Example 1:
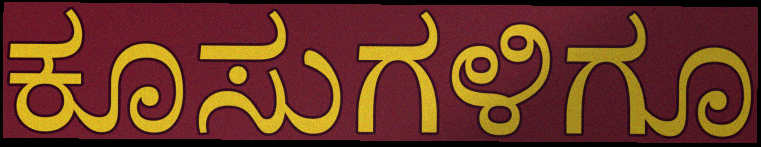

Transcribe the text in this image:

ಕೂಸುಗಳಿಗೂ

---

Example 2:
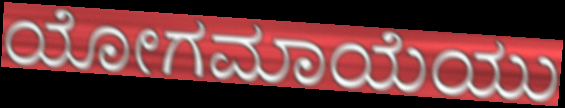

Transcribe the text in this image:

ಯೋಗಮಾಯೆಯು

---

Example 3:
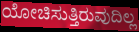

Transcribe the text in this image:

ಯೋಚಿಸುತ್ತಿರುವುದಿಲ್ಲ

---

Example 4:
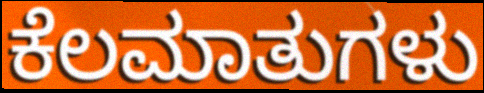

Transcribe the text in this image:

ಕೆಲಮಾತುಗಳು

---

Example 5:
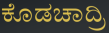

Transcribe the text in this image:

ಕೊಡಚಾದ್ರಿ